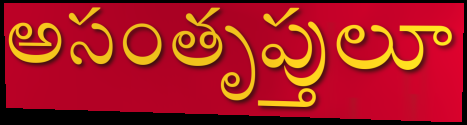
అసంతృప్తులూ